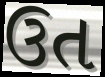
ઉત